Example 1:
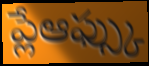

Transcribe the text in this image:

ప్లేఆఫ్స్కు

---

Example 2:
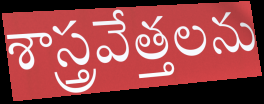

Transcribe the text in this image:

శాస్త్రవేత్తలను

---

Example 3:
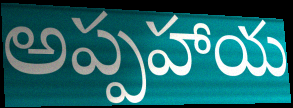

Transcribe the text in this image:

అప్పహాయ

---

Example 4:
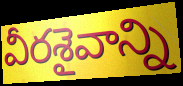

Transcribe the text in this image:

వీరశైవాన్ని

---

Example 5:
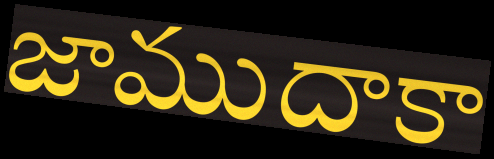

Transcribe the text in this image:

జాముదాకా